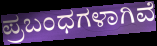
ಪ್ರಬಂಧಗಳಾಗಿವೆ